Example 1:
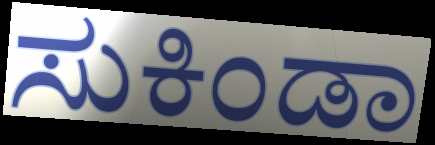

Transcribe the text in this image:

ಸುಕಿಂಡಾ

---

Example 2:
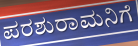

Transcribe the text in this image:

ಪರಶುರಾಮನಿಗೆ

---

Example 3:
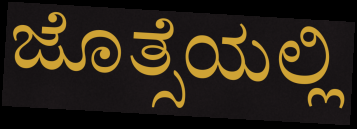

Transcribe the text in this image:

ಜೊತ್ಸೆಯಲ್ಲಿ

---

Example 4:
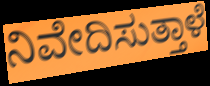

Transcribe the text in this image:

ನಿವೇದಿಸುತ್ತಾಳೆ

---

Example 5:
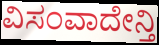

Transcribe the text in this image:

ವಿಸಂವಾದೇನ್ತಿ